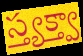
స్త్యక్త్వా